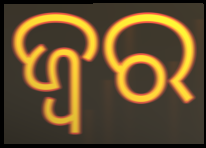
ଜ୍ବର